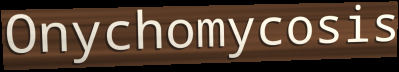
Onychomycosis